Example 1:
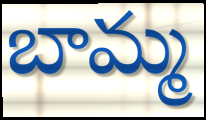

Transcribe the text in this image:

బామ్మ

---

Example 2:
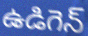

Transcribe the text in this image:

ఉడిగెన్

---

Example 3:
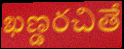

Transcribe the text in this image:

ఖణ్డరచితే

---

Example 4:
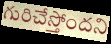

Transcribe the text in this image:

గురిచేస్తోందని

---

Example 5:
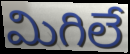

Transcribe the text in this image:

మిగిలే